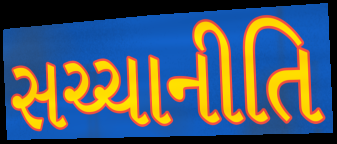
સચ્ચાનીતિ